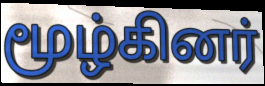
மூழ்கினர்